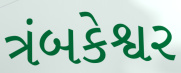
ત્રંબકેશ્વર